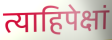
त्याहिपेक्षां